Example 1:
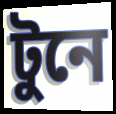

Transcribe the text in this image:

টুনে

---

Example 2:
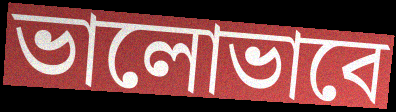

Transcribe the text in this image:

ভালোভাবে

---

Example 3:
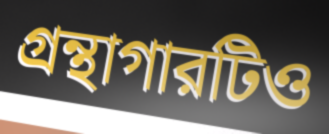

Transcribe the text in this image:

গ্রন্থাগারটিও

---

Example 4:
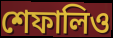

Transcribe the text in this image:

শেফালিও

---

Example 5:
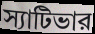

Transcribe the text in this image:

স্যাটিভার